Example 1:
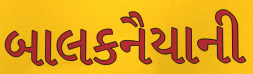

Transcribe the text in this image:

બાલકનૈયાની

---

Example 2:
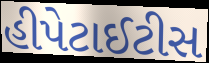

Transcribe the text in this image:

હીપેટાઈટીસ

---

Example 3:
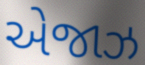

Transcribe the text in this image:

એજાઝ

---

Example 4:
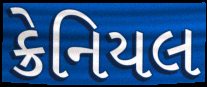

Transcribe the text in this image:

ક્રેનિયલ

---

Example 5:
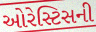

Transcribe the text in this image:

ઓરેસ્ટિસની